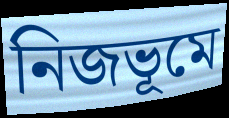
নিজভূমে